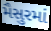
મૈસુરમાં